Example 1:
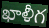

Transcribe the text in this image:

ఖాళీగ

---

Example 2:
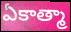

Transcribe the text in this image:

ఏకాత్మా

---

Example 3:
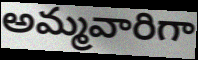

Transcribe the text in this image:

అమ్మవారిగా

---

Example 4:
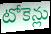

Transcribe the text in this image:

టోకెన్లు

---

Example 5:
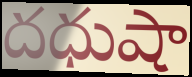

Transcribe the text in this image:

దధుషా